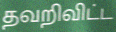
தவறிவிட்ட